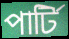
পাৰ্টি